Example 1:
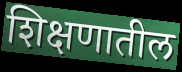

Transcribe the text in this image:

शिक्षणातील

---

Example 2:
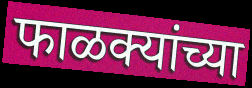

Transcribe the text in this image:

फाळक्यांच्या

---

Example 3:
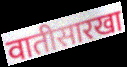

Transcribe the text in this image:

वातीसारखा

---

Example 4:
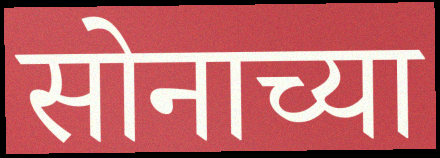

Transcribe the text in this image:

सोनाच्या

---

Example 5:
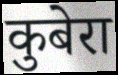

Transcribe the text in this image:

कुबेरा